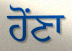
ਹੋਂਣਾ